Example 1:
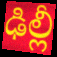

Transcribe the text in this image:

ఢిల్లీ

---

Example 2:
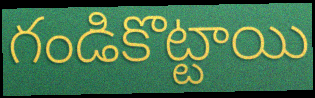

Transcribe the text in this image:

గండికొట్టాయి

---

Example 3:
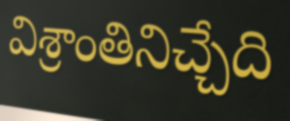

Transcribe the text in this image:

విశ్రాంతినిచ్చేది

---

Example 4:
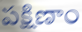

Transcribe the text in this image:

పక్షిణాం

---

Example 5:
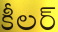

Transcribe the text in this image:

కీలర్